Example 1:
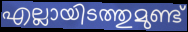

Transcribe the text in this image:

എല്ലായിടത്തുമുണ്ട്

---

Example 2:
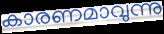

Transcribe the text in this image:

കാരണമാവുന്നു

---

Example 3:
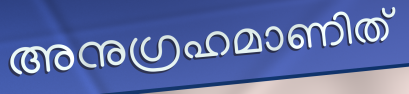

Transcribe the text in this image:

അനുഗ്രഹമാണിത്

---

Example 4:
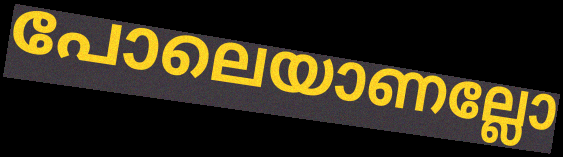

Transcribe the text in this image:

പോലെയാണല്ലോ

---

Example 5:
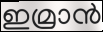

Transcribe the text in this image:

ഇമ്രാൻ